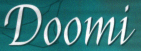
Doomi